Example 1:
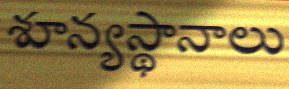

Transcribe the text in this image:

శూన్యస్థానాలు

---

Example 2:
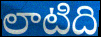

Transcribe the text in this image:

లాటిది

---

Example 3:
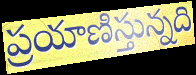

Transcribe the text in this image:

ప్రయాణిస్తున్నది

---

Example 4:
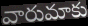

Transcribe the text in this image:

వారుమాకు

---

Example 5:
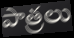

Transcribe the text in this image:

పాత్రలు